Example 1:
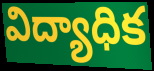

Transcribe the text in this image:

విద్యాధిక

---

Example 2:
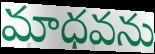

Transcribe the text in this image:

మాధవను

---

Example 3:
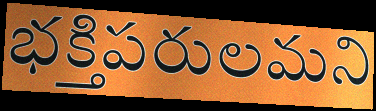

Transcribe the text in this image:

భక్తిపరులమని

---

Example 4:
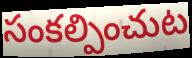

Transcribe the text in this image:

సంకల్పించుట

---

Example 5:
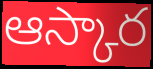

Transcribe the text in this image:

ఆస్కార